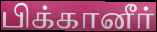
பிக்கானீர்